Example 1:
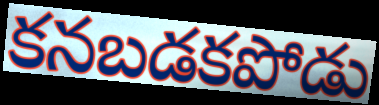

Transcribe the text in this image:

కనబడకపోడు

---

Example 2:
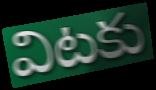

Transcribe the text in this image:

విటకు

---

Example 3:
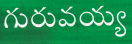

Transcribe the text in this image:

గురువయ్య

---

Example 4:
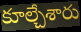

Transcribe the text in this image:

కూల్చేశారు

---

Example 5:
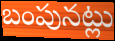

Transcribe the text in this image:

బంపునట్లు